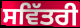
ਸਵਿੱਤਰੀ